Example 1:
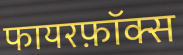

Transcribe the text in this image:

फायरफ़ॉक्स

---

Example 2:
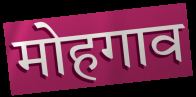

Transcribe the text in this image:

मोहगाव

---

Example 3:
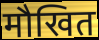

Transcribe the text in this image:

मौखित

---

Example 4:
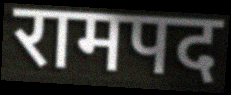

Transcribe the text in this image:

रामपद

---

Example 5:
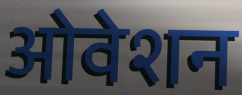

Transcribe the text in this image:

ओवेशन